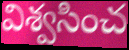
విశ్వసించ